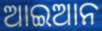
ଆଇଆନ